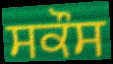
ਸਕੌਸ